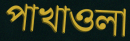
পাখাওলা